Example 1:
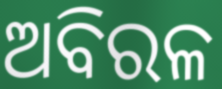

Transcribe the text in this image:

ଅବିରଳ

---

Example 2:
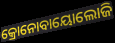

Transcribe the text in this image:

କ୍ରୋନୋବାୟୋଲୋଜି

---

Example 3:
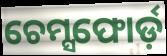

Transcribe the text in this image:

ଚେମ୍ସଫୋର୍ଡ଼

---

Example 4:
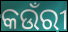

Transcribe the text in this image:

କଉଁରୀ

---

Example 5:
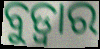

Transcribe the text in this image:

ବୁଡ୍ୱାର